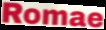
Romae